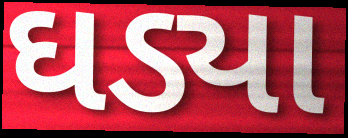
ઘડ્યા